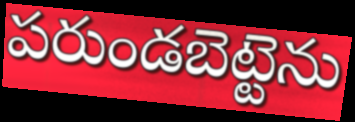
పరుండబెట్టెను